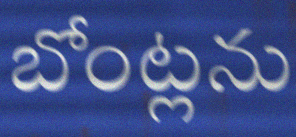
బోంట్లను